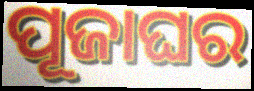
ପୂଜାଘର